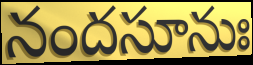
నందసూనుః